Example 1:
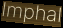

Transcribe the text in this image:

Imphal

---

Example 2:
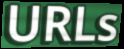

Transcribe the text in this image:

URLs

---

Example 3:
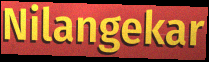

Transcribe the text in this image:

Nilangekar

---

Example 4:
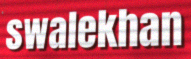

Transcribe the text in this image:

swalekhan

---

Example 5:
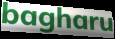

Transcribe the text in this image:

bagharu